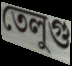
তেলুগু